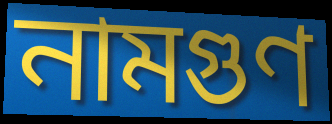
নামগুণ